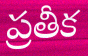
ప్రతీక